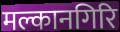
मल्कानगिरि